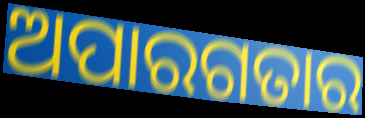
ଅପାରଗତାର